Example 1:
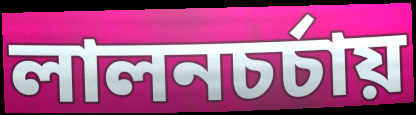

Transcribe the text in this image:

লালনচর্চায়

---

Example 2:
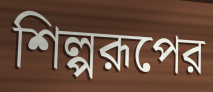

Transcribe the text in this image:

শিল্পরূপের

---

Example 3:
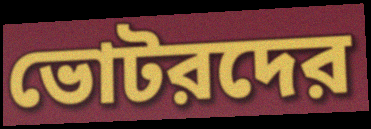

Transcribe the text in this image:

ভোটরদের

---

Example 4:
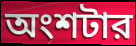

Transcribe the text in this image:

অংশটার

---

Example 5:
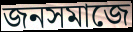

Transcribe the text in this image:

জনসমাজে